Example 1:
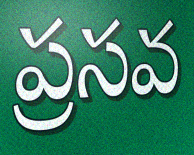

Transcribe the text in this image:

ప్రసవ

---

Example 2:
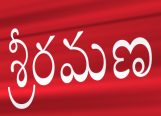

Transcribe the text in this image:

శ్రీరమణ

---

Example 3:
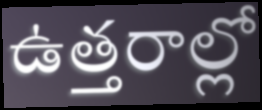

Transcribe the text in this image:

ఉత్తరాల్లో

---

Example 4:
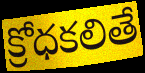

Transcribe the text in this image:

క్రోధకలితే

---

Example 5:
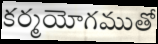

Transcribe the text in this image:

కర్మయోగముతో